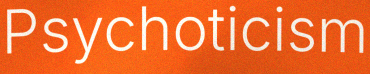
Psychoticism